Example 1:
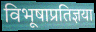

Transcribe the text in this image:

विभूषाप्रतिज्ञया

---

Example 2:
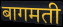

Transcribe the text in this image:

बागमती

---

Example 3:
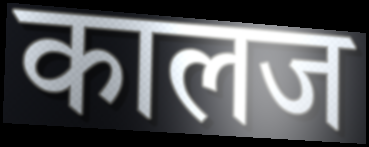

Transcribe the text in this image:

कालज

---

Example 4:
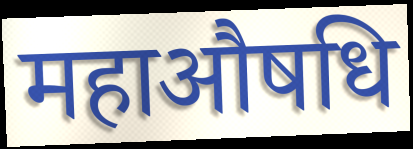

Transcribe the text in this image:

महाऔषधि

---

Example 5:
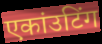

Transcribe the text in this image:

एकांउटिंग